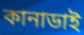
কানাডাই